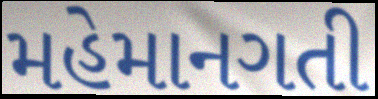
મહેમાનગતી